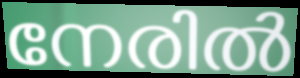
നേരിൽ